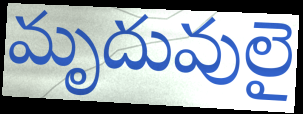
మృదువులై